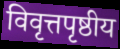
विवृत्तपृष्ठीय